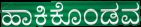
ಹಾಕಿಕೊಂಡವ